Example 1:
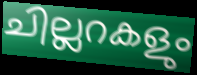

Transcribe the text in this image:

ചില്ലറകളും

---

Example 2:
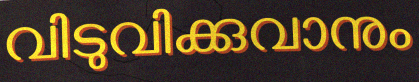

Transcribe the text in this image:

വിടുവിക്കുവാനും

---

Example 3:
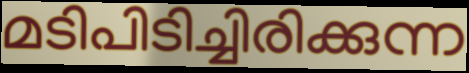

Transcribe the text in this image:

മടിപിടിച്ചിരിക്കുന്ന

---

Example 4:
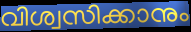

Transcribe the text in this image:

വിശ്വസിക്കാനും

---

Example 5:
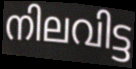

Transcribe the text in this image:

നിലവിട്ട